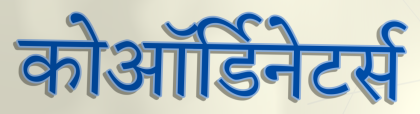
कोऑर्डिनेटर्स